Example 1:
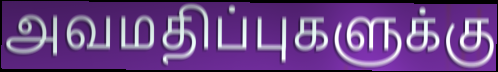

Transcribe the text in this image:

அவமதிப்புகளுக்கு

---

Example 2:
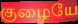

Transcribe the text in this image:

குழையே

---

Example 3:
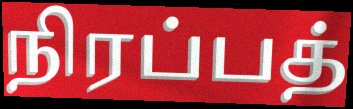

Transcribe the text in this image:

நிரப்பத்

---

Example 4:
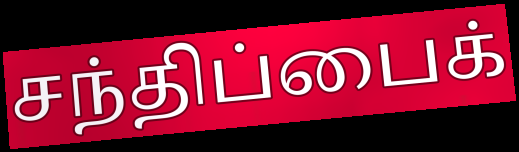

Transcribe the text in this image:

சந்திப்பைக்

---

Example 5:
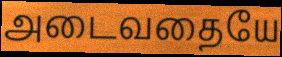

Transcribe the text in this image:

அடைவதையே